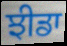
ਝੀਡਾ